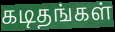
கடிதங்கள்